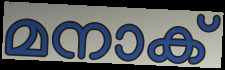
മനാക്